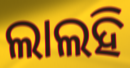
ଲାଲହି